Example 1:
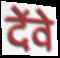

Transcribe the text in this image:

देंवे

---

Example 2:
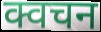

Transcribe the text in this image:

क्वचन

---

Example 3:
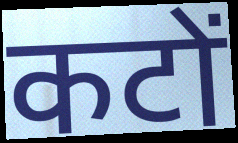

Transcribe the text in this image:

कटों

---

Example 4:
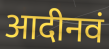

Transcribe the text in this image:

आदीनवं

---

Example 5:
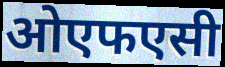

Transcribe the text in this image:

ओएफएसी